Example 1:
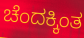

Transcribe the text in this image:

ಚೆಂದಕ್ಕಿಂತ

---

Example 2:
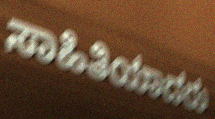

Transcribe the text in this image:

ಸಾಹಿತಿಯಾದರು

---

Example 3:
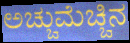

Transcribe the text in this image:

ಅಚ್ಚುಮೆಚ್ಚಿನ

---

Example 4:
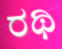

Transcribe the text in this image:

ರಥಿ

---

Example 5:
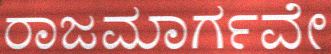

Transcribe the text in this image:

ರಾಜಮಾರ್ಗವೇ